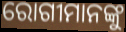
ରୋଗୀମାନଙ୍କୁ